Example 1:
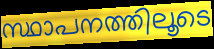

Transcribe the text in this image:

സ്ഥാപനത്തിലൂടെ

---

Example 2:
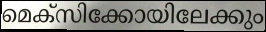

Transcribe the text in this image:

മെക്സിക്കോയിലേക്കും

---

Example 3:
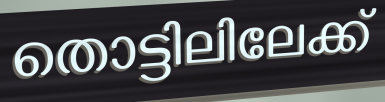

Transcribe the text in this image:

തൊട്ടിലിലേക്ക്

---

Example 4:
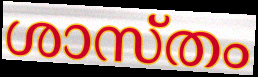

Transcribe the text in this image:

ശാസ്തം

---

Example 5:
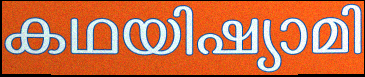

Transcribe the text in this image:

കഥയിഷ്യാമി